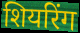
शियरिंग